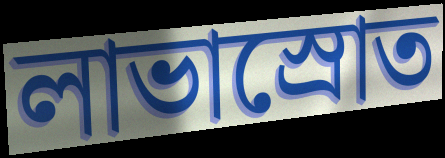
লাভাস্রোত